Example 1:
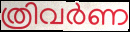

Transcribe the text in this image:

ത്രിവർണ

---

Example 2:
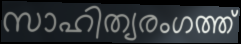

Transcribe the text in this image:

സാഹിത്യരംഗത്ത്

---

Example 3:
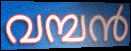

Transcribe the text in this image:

വമ്പൻ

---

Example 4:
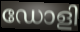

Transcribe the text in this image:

ഡോളി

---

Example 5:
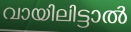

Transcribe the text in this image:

വായിലിട്ടാൽ